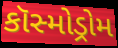
કૉસ્મોડ્રોમ